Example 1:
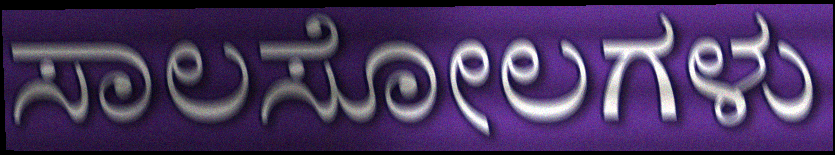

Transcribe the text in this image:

ಸಾಲಸೋಲಗಳು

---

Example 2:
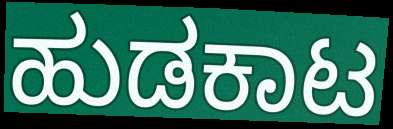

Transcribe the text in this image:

ಹುಡಕಾಟ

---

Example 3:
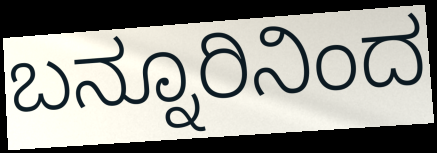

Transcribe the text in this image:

ಬನ್ನೂರಿನಿಂದ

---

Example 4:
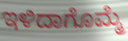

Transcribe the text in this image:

ಇಳಿದಾಗೊಮ್ಮೆ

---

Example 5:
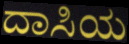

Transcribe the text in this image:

ದಾಸಿಯ